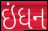
ઇંધન